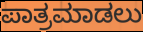
ಪಾತ್ರಮಾಡಲು